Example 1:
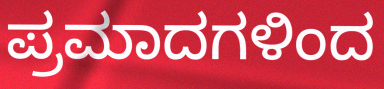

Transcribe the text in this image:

ಪ್ರಮಾದಗಳಿಂದ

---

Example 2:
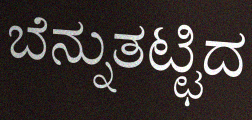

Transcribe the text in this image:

ಬೆನ್ನುತಟ್ಟಿದ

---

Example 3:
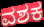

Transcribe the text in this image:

ವಶಕ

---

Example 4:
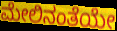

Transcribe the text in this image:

ಮೇಲಿನಂತೆಯೇ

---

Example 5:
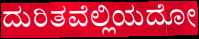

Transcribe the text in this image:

ದುರಿತವೆಲ್ಲಿಯದೋ